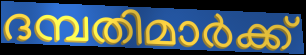
ദമ്പതിമാർക്ക്